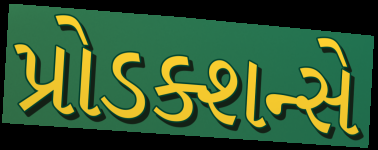
પ્રોડક્શન્સે